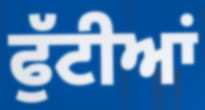
ਫੁੱਟੀਆਂ